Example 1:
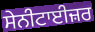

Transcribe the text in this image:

ਸੇਨੀਟਾਈਜ਼ਰ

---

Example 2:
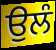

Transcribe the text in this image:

ਉਲੰ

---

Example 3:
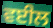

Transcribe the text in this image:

ਵਈਲ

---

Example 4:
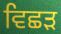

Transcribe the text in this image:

ਵਿਛਡ਼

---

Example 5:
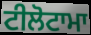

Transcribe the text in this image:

ਟੀਲੋਟਾਮਾ